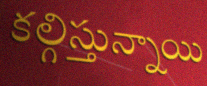
కల్గిస్తున్నాయి